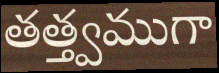
తత్త్వముగా